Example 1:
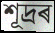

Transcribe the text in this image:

শূদ্ৰৰ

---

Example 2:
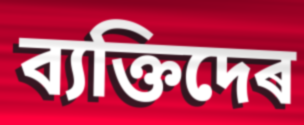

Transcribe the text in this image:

ব্যক্তিদেৰ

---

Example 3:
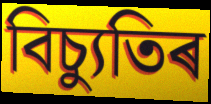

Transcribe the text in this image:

বিচ্যুতিৰ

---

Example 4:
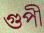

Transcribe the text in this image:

গুপী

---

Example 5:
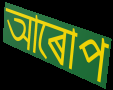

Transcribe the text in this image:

আৰোপ